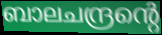
ബാലചന്ദ്രന്റെ